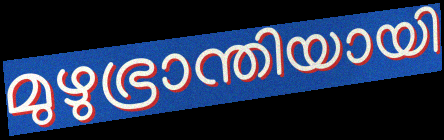
മുഴുഭ്രാന്തിയായി